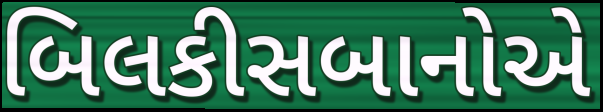
બિલકીસબાનોએ